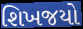
શિખજયો